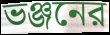
ভঞ্জনের